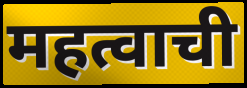
महत्वाची